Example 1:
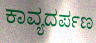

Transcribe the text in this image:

ಕಾವ್ಯದರ್ಪಣ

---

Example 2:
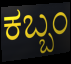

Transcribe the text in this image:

ಕಬ್ಬಂ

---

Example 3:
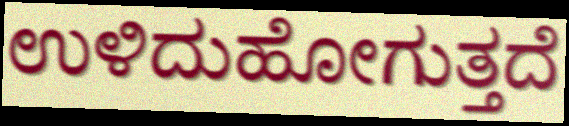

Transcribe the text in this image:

ಉಳಿದುಹೋಗುತ್ತದೆ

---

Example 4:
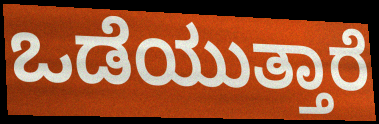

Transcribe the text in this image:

ಒಡೆಯುತ್ತಾರೆ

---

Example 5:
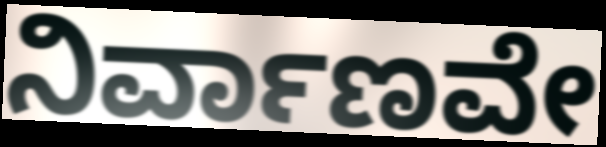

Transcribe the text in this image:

ನಿರ್ವಾಣವೇ